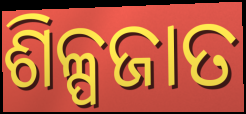
ଶିଳ୍ପଜାତ